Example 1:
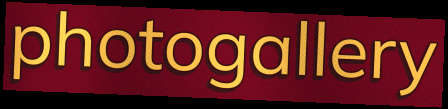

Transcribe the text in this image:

photogallery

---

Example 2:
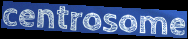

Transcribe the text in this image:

centrosome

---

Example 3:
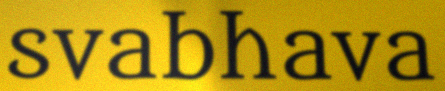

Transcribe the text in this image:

svabhava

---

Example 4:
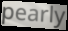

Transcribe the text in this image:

pearly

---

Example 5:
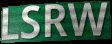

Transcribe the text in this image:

LSRW